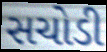
સચોડી